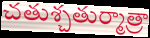
చతుశ్చతుర్మాత్రా